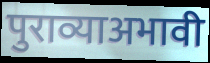
पुराव्याअभावी